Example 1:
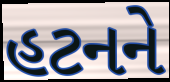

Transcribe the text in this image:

હટનને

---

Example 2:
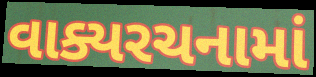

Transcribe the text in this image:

વાક્યરચનામાં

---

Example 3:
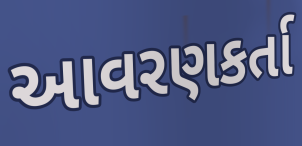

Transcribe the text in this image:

આવરણકર્તા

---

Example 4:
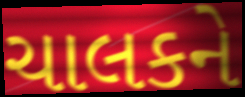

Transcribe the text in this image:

ચાલકને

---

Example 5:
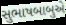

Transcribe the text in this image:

સુભાષબાબુએ